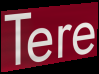
Tere